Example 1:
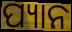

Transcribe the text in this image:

ପ୍ୟାନ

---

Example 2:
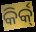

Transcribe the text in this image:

କିର୍କ୍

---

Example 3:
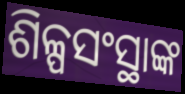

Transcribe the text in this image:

ଶିଳ୍ପସଂସ୍ଥାଙ୍କ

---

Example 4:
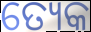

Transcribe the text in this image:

ତ୍ଯେକ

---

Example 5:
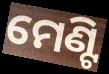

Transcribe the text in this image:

ମେଣ୍ଟି